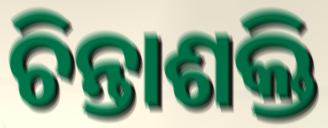
ଚିନ୍ତାଶକ୍ତି